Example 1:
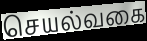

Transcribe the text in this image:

செயல்வகை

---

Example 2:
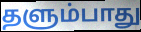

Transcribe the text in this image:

தளும்பாது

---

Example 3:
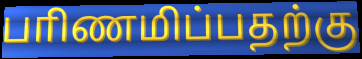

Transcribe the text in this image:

பரிணமிப்பதற்கு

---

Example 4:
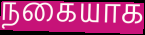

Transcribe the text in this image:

நகையாக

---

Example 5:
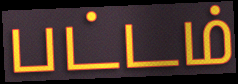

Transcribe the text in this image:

பட்டம்